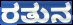
ರತುನ